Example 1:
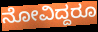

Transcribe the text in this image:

ನೋವಿದ್ದರೂ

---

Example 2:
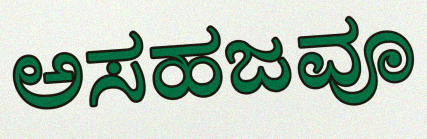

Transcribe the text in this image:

ಅಸಹಜವೂ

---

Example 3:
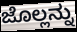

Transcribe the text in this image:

ಜೊಲ್ಲನ್ನು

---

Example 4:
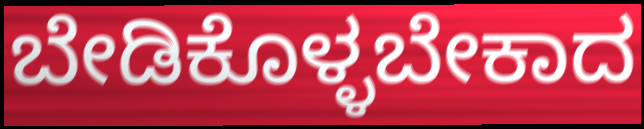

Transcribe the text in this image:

ಬೇಡಿಕೊಳ್ಳಬೇಕಾದ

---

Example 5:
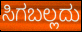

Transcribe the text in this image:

ಸಿಗಬಲ್ಲದು